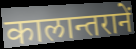
कालान्तरानें